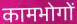
कामभोगों